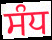
ਸੰਧ